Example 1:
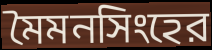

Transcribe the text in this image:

মৈমনসিংহের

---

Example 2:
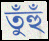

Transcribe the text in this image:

তুঁহুঁ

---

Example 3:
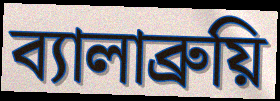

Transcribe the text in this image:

ব্যালাব্রুয়ি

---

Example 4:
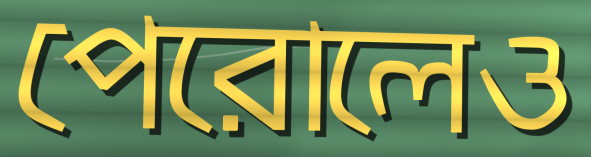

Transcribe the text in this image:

পেরোলেও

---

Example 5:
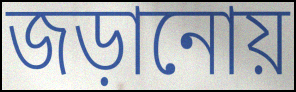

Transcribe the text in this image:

জড়ানোয়